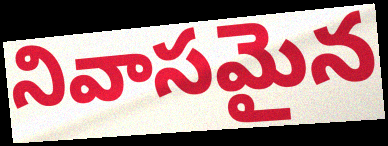
నివాసమైన